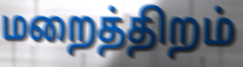
மறைத்திறம்